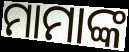
ମାମାଙ୍କ